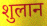
शुलान